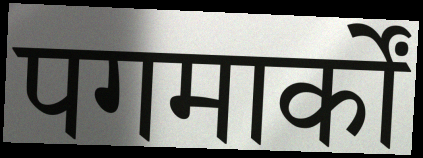
पगमार्कों